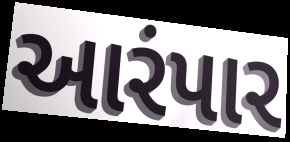
આરંપાર